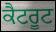
ਕੈਟਰੂਟ